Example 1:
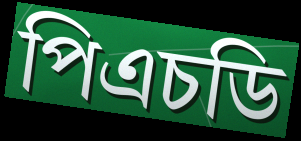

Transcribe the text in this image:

পিএচডি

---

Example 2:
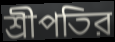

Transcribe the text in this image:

শ্রীপতির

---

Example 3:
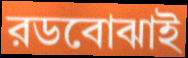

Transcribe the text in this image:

রডবোঝাই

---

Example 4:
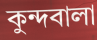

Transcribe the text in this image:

কুন্দবালা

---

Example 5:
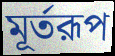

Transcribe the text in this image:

মূর্তরূপ